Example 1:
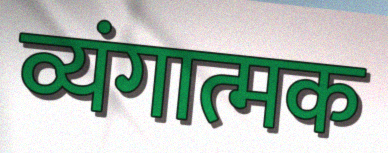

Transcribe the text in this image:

व्यंगात्मक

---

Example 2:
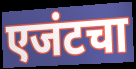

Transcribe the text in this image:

एजंटचा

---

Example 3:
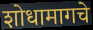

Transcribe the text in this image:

शोधामागचे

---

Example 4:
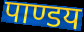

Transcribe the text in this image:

पाण्डय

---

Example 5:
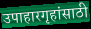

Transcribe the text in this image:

उपाहारगृहांसाठी